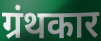
ग्रंथकार